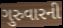
ગુરુવારની